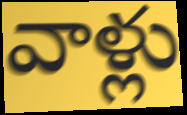
వాళ్లు